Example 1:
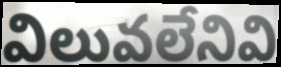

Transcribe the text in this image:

విలువలేనివి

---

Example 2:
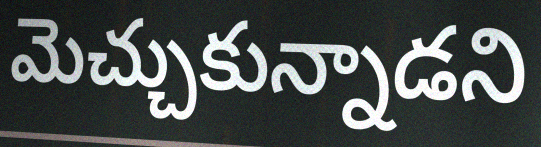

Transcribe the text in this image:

మెచ్చుకున్నాడని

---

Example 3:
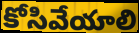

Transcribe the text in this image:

కోసివేయాలి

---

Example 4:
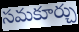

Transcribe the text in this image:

సమకూర్చు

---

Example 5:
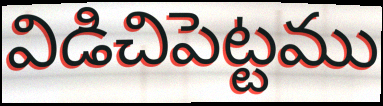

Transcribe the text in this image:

విడిచిపెట్టము